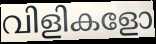
വിളികളോ